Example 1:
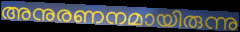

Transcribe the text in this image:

അനുരണനമായിരുന്നു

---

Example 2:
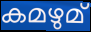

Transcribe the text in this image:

കമഴുമ്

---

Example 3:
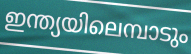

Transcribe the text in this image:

ഇന്ത്യയിലെമ്പാടും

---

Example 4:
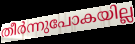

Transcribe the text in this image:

തീർന്നുപോകയില്ല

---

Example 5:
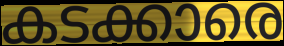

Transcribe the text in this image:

കടക്കാരെ